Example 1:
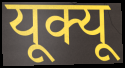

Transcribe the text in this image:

यूक्यू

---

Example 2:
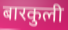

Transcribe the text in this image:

बारकुली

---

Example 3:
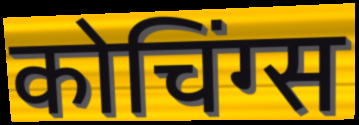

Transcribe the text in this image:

कोचिंग्स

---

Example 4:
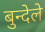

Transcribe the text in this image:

बुन्देले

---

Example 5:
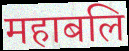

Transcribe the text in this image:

महाबलि